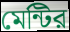
মেন্টির